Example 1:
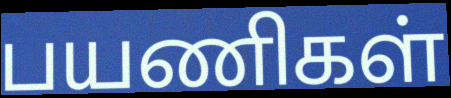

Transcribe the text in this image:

பயணிகள்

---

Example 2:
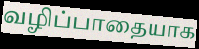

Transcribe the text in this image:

வழிப்பாதையாக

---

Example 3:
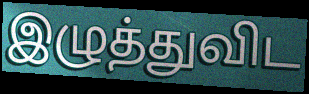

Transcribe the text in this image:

இழுத்துவிட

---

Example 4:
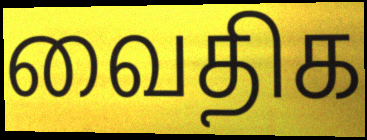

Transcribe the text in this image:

வைதிக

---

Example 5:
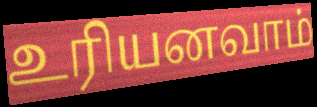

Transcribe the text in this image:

உரியனவாம்